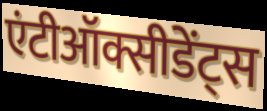
एंटीऑक्सीडेंट्स